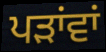
ਪੜਾਂਵਾਂ